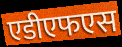
एडीएफएस